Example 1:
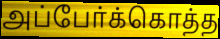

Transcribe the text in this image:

அப்பேர்க்கொத்த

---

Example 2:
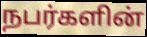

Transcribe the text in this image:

நபர்களின்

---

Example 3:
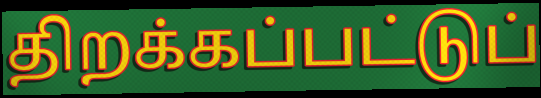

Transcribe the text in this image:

திறக்கப்பட்டுப்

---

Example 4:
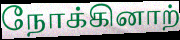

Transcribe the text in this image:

நோக்கினாற்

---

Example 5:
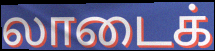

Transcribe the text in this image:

லாடைக்